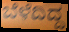
ಬೆಳೆದಿದ್ದ